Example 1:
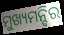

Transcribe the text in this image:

ମୁଖ୍ୟମନ୍ଦିର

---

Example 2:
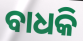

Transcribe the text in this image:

ବାଧକି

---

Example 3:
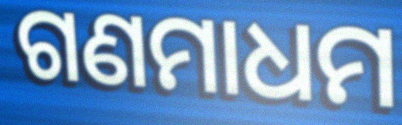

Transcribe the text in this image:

ଗଣମାଧମ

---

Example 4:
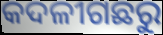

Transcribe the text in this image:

କଦଳୀଗଛରୁ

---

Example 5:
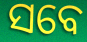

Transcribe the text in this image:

ସବେ